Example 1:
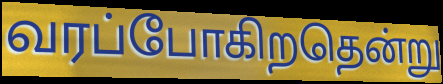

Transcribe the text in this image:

வரப்போகிறதென்று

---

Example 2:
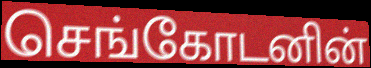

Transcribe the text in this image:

செங்கோடனின்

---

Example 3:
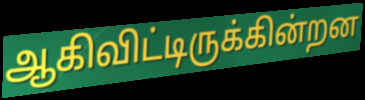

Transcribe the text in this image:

ஆகிவிட்டிருக்கின்றன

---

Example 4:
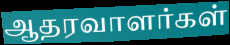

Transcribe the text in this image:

ஆதரவாளர்கள்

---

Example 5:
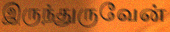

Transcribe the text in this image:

இருந்துருவேன்